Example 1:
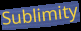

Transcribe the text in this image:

Sublimity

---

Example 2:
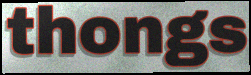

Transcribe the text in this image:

thongs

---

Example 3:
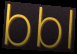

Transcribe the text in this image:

bbl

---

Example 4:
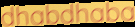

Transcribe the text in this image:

dhabdhaba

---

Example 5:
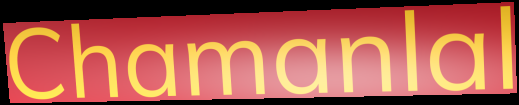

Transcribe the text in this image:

Chamanlal